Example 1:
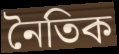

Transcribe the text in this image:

নৈতিক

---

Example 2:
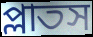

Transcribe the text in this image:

প্লাতস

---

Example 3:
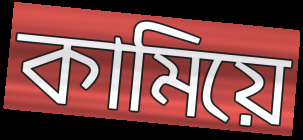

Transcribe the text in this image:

কামিয়ে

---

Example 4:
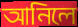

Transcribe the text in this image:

আনিলে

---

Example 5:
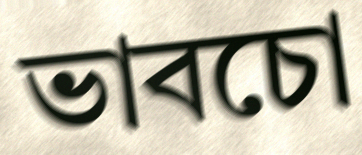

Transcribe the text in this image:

ভাবচো